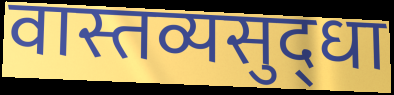
वास्तव्यसुद्धा